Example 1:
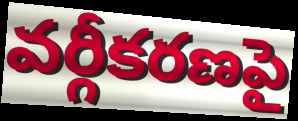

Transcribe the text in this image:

వర్గీకరణపై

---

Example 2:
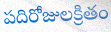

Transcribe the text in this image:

పదిరోజులక్రితం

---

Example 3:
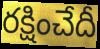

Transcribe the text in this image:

రక్షించేదీ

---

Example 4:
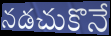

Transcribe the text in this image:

నడచుకొనే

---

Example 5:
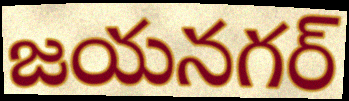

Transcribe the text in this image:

జయనగర్